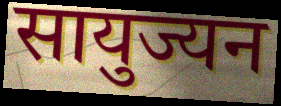
सायुज्यन